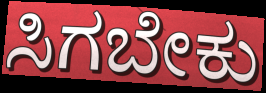
ಸಿಗಬೇಕು